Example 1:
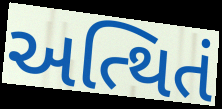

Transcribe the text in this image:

અત્થિતં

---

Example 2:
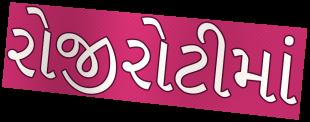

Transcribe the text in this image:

રોજીરોટીમાં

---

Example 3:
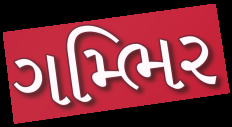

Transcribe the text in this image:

ગમ્ભિર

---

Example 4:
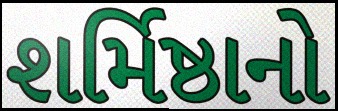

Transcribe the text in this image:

શર્મિષ્ઠાનો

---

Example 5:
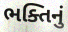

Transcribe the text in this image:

ભક્તિનું